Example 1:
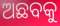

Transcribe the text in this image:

ଅଛବକୁ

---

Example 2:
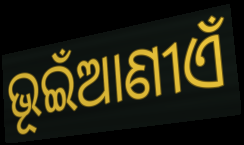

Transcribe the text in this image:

ଭୂଇଁଆଣୀଏଁ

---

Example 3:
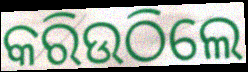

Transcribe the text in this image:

କରିଉଠିଲେ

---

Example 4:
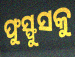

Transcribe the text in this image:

ଫୁସ୍ଫୁସକୁ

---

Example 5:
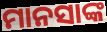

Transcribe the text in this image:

ମାନସାଙ୍କ